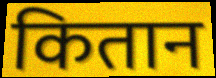
कितान